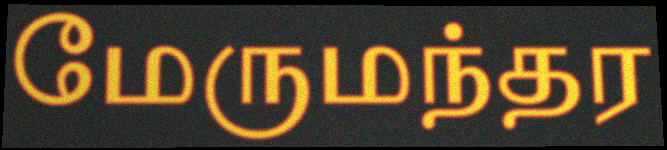
மேருமந்தர